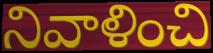
నివాళించి